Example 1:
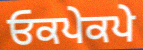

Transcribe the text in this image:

ਓਕਪੇਕਪੇ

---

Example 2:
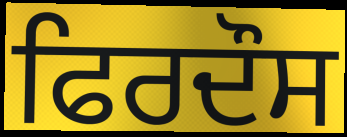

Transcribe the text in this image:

ਫਿਰਦੌਸ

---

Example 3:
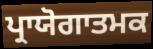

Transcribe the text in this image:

ਪ੍ਰਾਯੋਗਾਤਮਕ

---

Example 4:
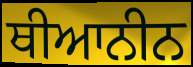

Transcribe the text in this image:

ਥੀਆਨੀਨ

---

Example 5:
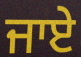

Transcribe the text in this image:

ਜਾਏੇ